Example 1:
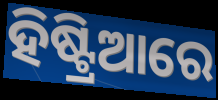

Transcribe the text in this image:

ହିଷ୍ଟ୍ରିଆରେ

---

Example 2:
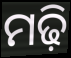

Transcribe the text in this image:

ମଢ଼ି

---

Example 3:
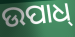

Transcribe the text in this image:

ଉପାଧ୍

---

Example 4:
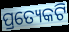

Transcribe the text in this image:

ପ୍ରତ୍ୟେକଟି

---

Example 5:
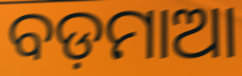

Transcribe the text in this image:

ବଡ଼ମାଆ